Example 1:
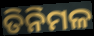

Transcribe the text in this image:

ତିନିମଳ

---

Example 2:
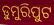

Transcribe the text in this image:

ଡୁମୁରିପୁଟ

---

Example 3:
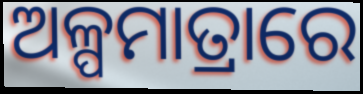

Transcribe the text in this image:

ଅଳ୍ପମାତ୍ରାରେ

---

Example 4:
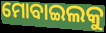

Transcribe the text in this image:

ମୋବାଇଲକୁ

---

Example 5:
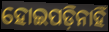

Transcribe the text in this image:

ହୋଇପଡ଼ିନାହିଁ